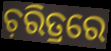
ଚ଼ରିତ୍ରରେ